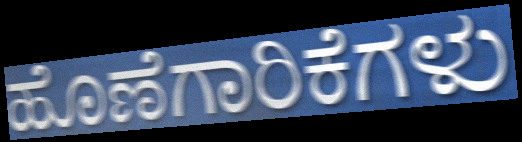
ಹೊಣೆಗಾರಿಕೆಗಳು